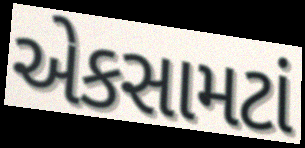
એકસામટાં